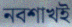
নবশাখই